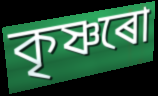
কৃষ্ণৰো